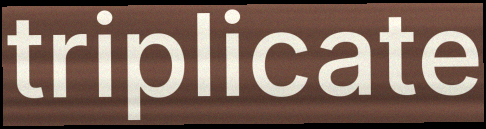
triplicate